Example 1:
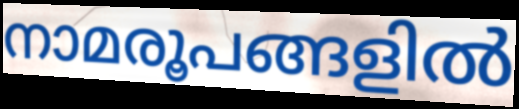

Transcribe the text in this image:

നാമരൂപങ്ങളിൽ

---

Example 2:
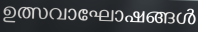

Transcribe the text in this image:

ഉത്സവാഘോഷങ്ങൾ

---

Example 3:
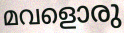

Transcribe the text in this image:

മവളൊരു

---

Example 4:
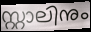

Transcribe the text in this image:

സ്റ്റാലിനും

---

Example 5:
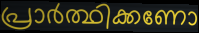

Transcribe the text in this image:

പ്രാർത്ഥിക്കണോ